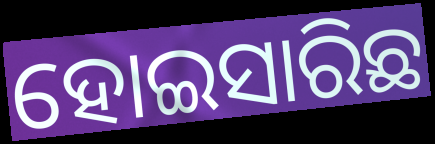
ହୋଇସାରିଛ